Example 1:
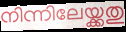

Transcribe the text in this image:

നിന്നിലേയ്ക്കതു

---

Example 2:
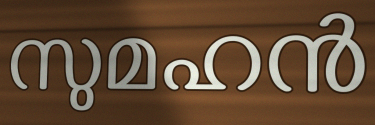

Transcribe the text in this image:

സുമഹൻ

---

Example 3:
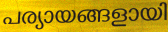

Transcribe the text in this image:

പര്യായങ്ങളായി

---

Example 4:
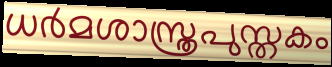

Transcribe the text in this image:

ധർമശാസ്ത്രപുസ്തകം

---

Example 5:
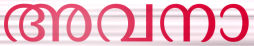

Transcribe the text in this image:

അവനാ